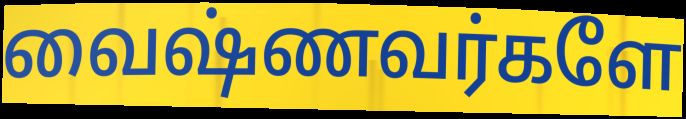
வைஷ்ணவர்களே